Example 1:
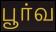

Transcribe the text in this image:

பூர்வ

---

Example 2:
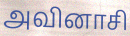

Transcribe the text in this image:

அவினாசி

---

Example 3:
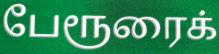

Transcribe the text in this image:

பேரூரைக்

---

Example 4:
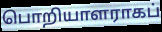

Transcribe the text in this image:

பொறியாளராகப்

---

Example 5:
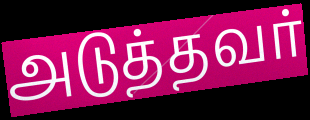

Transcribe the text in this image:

அடுத்தவர்